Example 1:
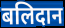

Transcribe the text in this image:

बलिदान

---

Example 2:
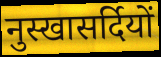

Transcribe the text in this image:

नुस्खासर्दियों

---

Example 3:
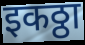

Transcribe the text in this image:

इकठ्ठा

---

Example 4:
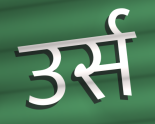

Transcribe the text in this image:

उर्स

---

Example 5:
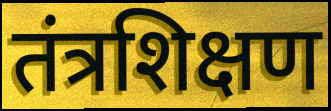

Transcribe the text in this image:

तंत्रशिक्षण